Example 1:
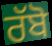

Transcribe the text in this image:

ਰੱਬੋ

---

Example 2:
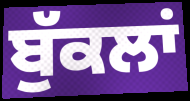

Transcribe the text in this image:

ਬੁੱਕਲਾਂ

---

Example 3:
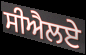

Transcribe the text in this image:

ਸੀਐਲਏ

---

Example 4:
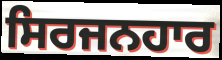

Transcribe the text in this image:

ਸਿਰਜਨਹਾਰ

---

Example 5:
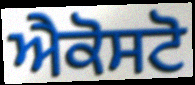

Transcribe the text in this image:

ਐਕੋਸਟੋ